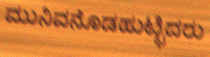
ಮುನಿವನೊಡಹುಟ್ಟಿದರು